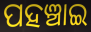
ପହଞ୍ଚାଇ